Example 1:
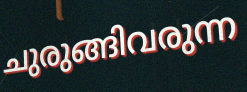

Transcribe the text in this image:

ചുരുങ്ങിവരുന്ന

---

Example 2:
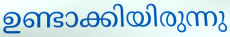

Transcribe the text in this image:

ഉണ്ടാക്കിയിരുന്നു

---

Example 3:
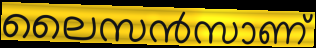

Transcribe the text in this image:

ലൈസൻസാണ്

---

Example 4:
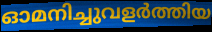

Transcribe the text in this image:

ഓമനിച്ചുവളർത്തിയ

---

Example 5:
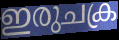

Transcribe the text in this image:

ഇരുചക്ര